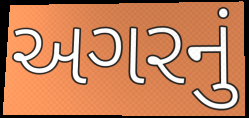
અગરનું